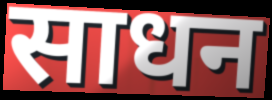
साधन